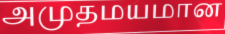
அமுதமயமான